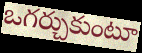
ఒగర్చుకుంటూ